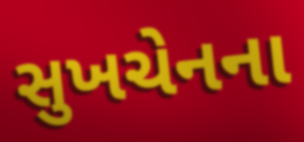
સુખચેનના